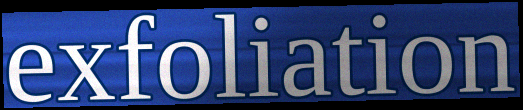
exfoliation